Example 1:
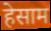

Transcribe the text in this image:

हेसाम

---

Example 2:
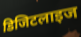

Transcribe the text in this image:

डिजिटलाइज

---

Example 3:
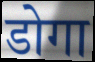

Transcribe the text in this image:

डोगा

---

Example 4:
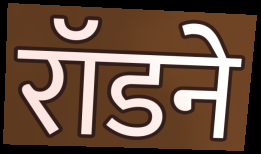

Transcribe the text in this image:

रॉडने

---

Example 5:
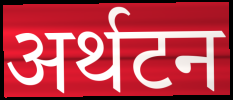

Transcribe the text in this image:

अर्थटन